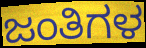
ಜಂತಿಗಳ